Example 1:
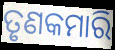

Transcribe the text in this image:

ତୃଣକମାରି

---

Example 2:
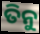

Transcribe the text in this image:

ତିନୁ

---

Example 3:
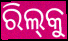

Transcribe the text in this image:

ରିଲ୍‌କୁ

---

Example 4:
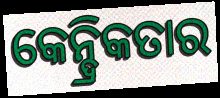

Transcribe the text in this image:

କେନ୍ଦ୍ରିକତାର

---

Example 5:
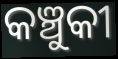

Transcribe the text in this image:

କଞ୍ଚୁକୀ